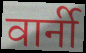
वार्नी